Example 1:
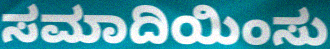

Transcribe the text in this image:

ಸಮಾದಿಯಿಂಸು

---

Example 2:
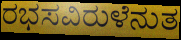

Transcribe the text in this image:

ರಭಸವಿರುಳೆನುತ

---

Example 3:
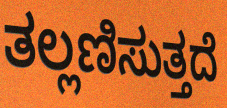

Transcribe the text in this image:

ತಲ್ಲಣಿಸುತ್ತದೆ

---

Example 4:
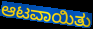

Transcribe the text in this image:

ಆಟವಾಯಿತು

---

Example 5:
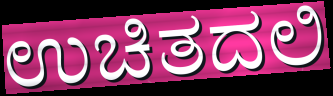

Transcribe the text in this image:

ಉಚಿತದಲಿ